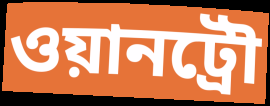
ওয়ানট্রৌ